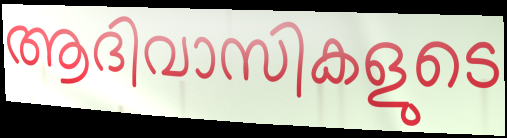
ആദിവാസികളുടെ